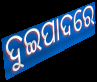
ଦୁଇପାଦରେ